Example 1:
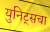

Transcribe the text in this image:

युनिट्सचा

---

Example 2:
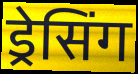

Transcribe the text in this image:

ड्रेसिंग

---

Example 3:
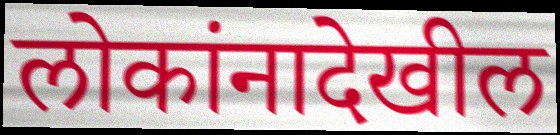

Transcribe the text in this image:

लोकांनादेखील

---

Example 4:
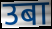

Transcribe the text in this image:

उबा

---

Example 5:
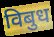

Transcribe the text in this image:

विबुध